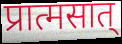
प्रात्मसात्